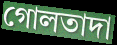
গোলতাদা